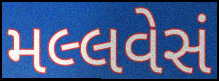
મલ્લવેસં